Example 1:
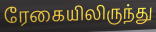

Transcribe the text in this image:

ரேகையிலிருந்து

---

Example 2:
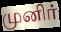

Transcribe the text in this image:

முனிர்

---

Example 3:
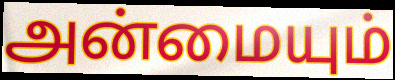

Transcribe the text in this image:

அன்மையும்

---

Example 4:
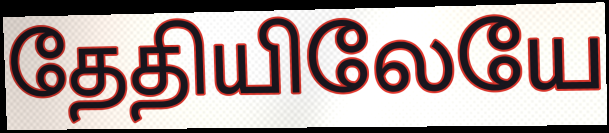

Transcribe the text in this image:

தேதியிலேயே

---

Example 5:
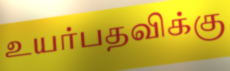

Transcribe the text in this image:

உயர்பதவிக்கு